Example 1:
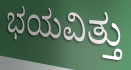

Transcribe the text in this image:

ಭಯವಿತ್ತು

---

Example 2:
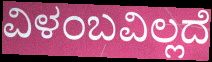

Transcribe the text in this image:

ವಿಳಂಬವಿಲ್ಲದೆ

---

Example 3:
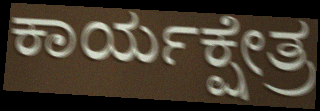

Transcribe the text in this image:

ಕಾರ್ಯಕ್ಷೇತ್ರ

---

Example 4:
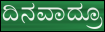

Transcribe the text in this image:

ದಿನವಾದ್ರೂ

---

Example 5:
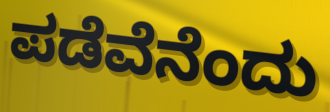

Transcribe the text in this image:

ಪಡೆವೆನೆಂದು